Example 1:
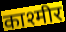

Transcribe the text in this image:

काश्मीर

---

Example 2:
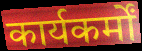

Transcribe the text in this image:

कार्यकर्मों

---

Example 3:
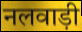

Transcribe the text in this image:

नलवाड़ी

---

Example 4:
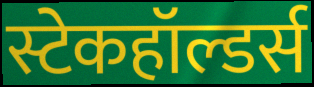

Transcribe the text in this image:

स्टेकहॉल्डर्स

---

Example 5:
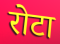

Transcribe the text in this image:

रोटा